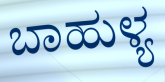
ಬಾಹುಳ್ಯ